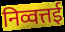
निव्वत्तई